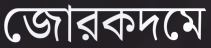
জোরকদমে